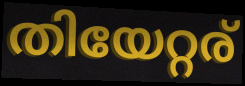
തിയേറ്റര്